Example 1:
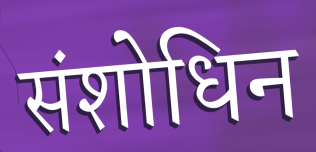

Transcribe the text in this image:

संशोधिन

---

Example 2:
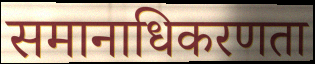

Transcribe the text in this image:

समानाधिकरणता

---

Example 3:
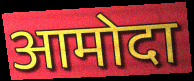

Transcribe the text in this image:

आमोदा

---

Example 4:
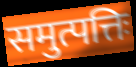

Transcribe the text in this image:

समुत्पत्तिः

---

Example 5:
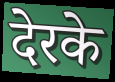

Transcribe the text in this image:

देरके